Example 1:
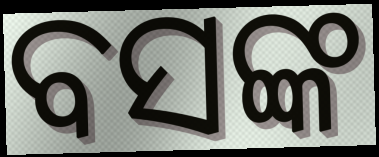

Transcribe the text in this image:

ବସଙ୍କ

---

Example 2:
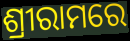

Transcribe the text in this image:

ଶ୍ରୀରାମରେ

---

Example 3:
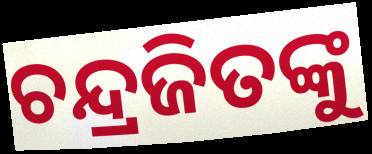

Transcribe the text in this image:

ଚନ୍ଦ୍ରଜିତଙ୍କୁ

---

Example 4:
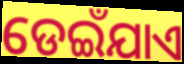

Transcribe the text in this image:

ଡେଇଁଯାଏ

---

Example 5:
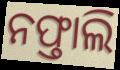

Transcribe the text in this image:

ନଫ୍ତାଲି